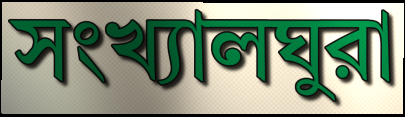
সংখ্যালঘুরা